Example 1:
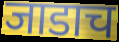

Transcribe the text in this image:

जाडाच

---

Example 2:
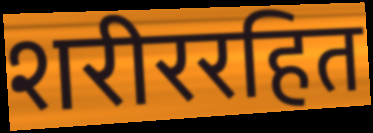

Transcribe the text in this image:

शरीररहित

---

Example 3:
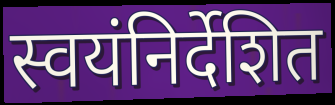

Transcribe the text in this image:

स्वयंनिर्देशित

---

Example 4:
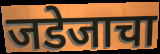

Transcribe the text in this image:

जडेजाचा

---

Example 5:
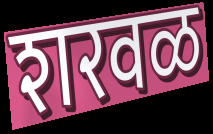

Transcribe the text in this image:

शरवळ